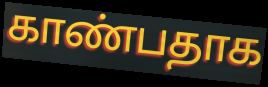
காண்பதாக